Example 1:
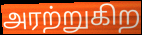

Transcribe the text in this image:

அரற்றுகிற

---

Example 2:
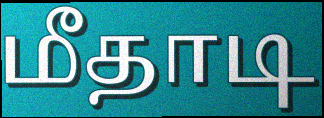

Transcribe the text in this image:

மீதாடி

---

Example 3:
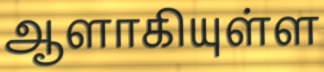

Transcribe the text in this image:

ஆளாகியுள்ள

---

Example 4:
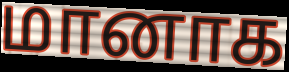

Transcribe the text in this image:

மானாக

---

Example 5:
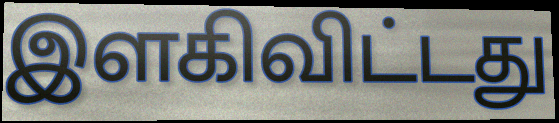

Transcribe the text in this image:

இளகிவிட்டது